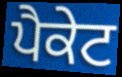
ਪੈਕੇਟ